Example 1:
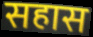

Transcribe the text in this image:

सहास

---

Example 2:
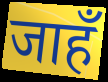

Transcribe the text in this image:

जाहँ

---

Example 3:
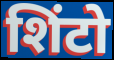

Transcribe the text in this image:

शिंटो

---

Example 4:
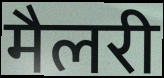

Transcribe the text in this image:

मैलरी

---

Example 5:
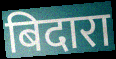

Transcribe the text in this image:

बिदारा